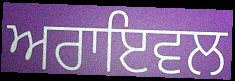
ਅਰਾਇਵਲ